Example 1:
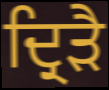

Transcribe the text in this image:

ਦ੍ਰਿੜੈ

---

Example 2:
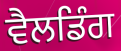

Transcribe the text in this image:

ਵੈਲਡਿੰਗ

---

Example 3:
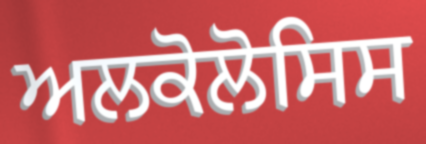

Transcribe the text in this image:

ਅਲਕੋਲੋਸਿਸ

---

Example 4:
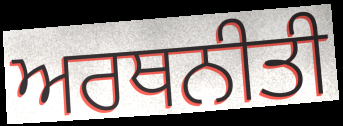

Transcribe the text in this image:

ਅਰਥਨੀਤੀ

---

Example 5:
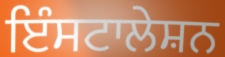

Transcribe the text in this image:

ਇੰਸਟਾਲੇਸ਼ਨ